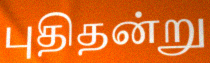
புதிதன்று